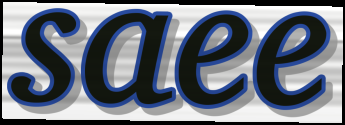
saee